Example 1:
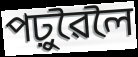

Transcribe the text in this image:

পঢ়ুৱৈলৈ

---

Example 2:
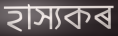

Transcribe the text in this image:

হাস্যকৰ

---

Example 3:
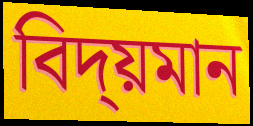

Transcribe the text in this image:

বিদ্য়মান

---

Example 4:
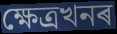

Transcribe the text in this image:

ক্ষেত্ৰখনৰ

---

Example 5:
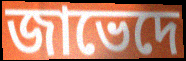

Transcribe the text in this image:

জাভেদে